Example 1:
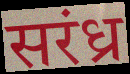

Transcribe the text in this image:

सरंध्र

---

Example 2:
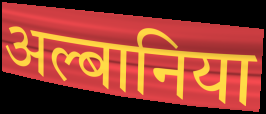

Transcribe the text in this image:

अल्बानिया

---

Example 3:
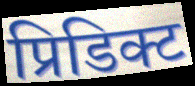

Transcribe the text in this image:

प्रिडिक्ट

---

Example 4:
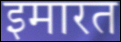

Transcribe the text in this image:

इमारत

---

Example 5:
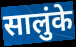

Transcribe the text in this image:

सालुंके